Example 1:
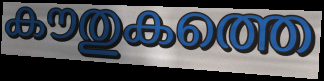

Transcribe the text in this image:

കൗതുകത്തെ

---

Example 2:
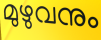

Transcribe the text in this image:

മുഴുവനും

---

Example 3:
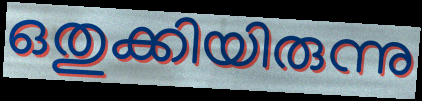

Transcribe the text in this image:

ഒതുക്കിയിരുന്നു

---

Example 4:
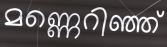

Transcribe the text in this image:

മണ്ണെറിഞ്ഞ്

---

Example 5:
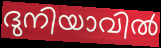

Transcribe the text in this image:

ദുനിയാവിൽ